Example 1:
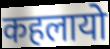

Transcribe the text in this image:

कहलायो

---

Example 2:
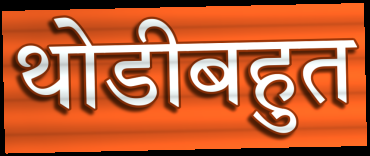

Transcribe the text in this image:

थोडीबहुत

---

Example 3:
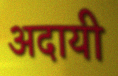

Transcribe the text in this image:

अदायी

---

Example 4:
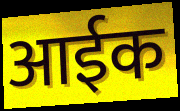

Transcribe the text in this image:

आईक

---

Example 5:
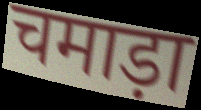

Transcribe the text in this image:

चमाड़ा